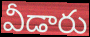
వీడారు